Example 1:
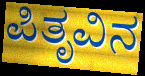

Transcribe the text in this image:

ಪಿತೃವಿನ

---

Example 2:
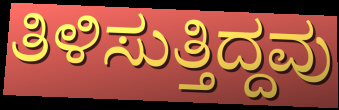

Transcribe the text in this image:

ತಿಳಿಸುತ್ತಿದ್ದವು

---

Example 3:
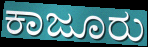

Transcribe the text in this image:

ಕಾಜೂರು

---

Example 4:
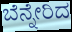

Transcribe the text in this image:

ಬೆನ್ನೇರಿದ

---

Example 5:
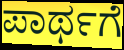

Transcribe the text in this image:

ಪಾರ್ಥಗೆ